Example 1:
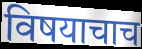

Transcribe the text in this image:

विषयाचाच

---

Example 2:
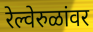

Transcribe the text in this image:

रेल्वेरुळांवर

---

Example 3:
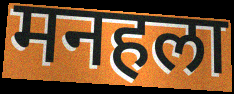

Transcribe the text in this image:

मनहला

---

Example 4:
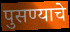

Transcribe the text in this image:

पुसण्याचे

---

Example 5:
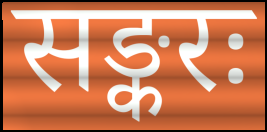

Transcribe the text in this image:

सङ्करः